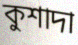
কুশাদা